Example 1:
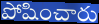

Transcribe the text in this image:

పోషించారు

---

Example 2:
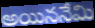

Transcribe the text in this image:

అయిననేమి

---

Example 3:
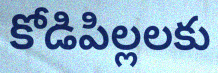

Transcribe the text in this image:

కోడిపిల్లలకు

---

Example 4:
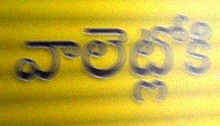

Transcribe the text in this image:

వాలెట్లోకి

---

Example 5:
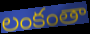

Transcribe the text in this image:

లంకంతా